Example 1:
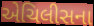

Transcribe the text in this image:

એચિલીસના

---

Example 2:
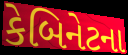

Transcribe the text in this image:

કેબિનેટના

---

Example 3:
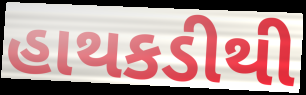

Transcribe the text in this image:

હાથકડીથી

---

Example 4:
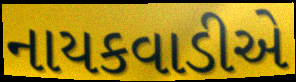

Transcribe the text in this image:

નાયકવાડીએ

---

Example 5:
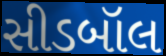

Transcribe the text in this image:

સીડબૉલ